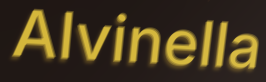
Alvinella